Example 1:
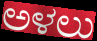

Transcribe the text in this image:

ಅಳಲು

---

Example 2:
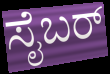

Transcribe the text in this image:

ಸೈಬರ್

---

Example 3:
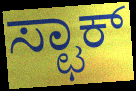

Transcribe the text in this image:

ಸ್ಟಾಕ್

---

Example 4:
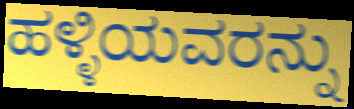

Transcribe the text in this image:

ಹಳ್ಳಿಯವರನ್ನು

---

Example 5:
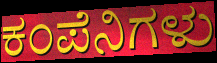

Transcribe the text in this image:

ಕಂಪೆನಿಗಳು